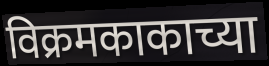
विक्रमकाकाच्या